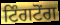
ਟਿੰਗਟੋਂਗ